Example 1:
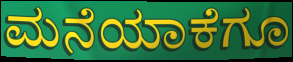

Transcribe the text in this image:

ಮನೆಯಾಕೆಗೂ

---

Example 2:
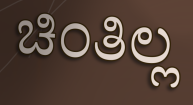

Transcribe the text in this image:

ಚಿಂತಿಲ್ಲ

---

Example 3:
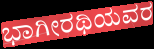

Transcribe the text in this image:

ಭಾಗೀರಥಿಯವರ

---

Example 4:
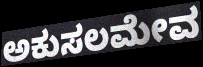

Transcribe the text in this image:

ಅಕುಸಲಮೇವ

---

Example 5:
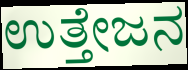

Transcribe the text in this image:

ಉತ್ತೇಜನ